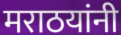
मराठयांनी